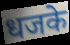
धजके